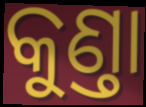
କୁଣ୍ତା